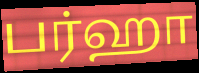
பர்ஹா